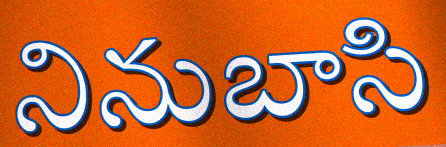
నినుబాసి